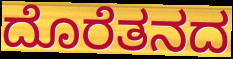
ದೊರೆತನದ